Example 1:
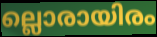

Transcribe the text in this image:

ല്ലൊരായിരം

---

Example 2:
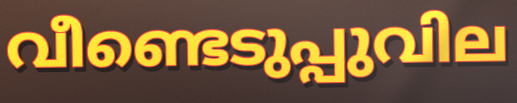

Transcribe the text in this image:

വീണ്ടെടുപ്പുവില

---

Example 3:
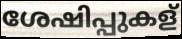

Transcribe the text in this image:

ശേഷിപ്പുകള്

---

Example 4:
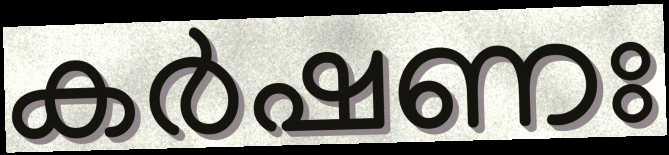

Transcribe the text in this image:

കർഷണഃ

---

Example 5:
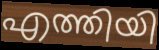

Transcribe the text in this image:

എത്തിയി